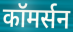
कॉमर्सन